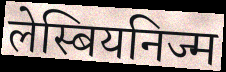
लेस्बियनिज्म